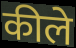
कीले